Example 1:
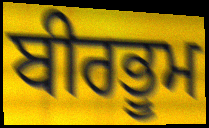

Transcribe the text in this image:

ਬੀਰਭੂਮ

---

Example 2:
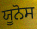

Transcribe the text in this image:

ਯੂਨੋਸ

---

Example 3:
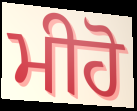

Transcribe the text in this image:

ਮੀਹੋ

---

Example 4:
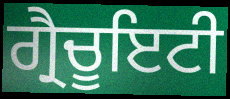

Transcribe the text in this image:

ਗ੍ਰੈਚੂਇਟੀ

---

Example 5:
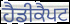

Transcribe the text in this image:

ਹੈਡੀਕੈਪਟ